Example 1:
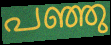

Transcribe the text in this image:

പഞ്ഞു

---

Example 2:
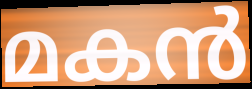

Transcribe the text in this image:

മകൻ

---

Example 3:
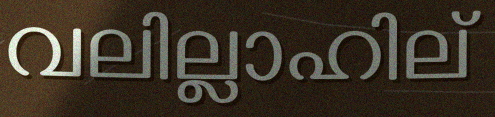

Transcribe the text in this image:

വലില്ലാഹില്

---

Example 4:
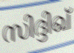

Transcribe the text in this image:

സിദ്ദിഖ്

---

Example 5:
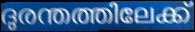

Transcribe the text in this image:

ദുരന്തത്തിലേക്ക്